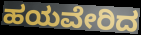
ಹಯವೇರಿದ